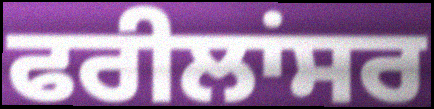
ਫਰੀਲਾਂਸਰ